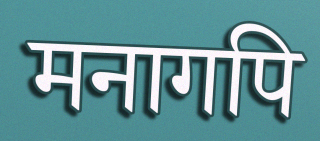
मनागपि